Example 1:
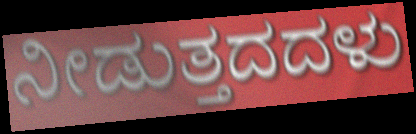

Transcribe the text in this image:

ನೀಡುತ್ತದದಳು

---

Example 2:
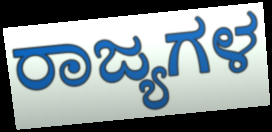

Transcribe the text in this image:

ರಾಜ್ಯಗಳ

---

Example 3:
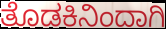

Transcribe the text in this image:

ತೊಡಕಿನಿಂದಾಗಿ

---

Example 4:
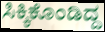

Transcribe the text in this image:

ಸಿಕ್ಕಿಕೊಂಡಿದ್ದ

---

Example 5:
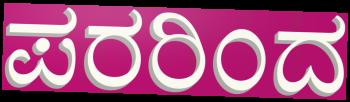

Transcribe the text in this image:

ಪರರಿಂದ